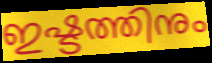
ഇഷ്ടത്തിനും